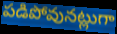
పడిపోవునట్లుగా